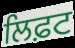
ਲਿਫ਼ਟ